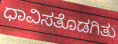
ಧಾವಿಸತೊಡಗಿತು